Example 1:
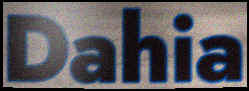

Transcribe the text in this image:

Dahia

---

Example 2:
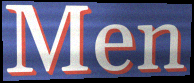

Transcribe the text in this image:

Men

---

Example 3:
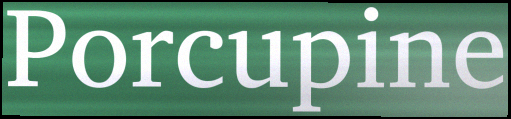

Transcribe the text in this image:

Porcupine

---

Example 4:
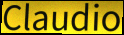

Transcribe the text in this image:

Claudio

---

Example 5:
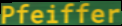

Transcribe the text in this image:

Pfeiffer